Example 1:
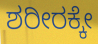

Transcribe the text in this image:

ಶರೀರಕ್ಕೇ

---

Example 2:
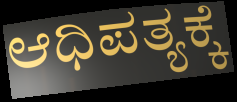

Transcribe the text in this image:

ಆಧಿಪತ್ಯಕ್ಕೆ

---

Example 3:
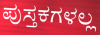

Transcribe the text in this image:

ಪುಸ್ತಕಗಳಲ್ಲ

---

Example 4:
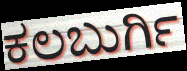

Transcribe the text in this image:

ಕಲಬುರ್ಗಿ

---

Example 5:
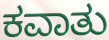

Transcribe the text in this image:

ಕವಾತು